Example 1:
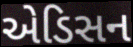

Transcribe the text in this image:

એડિસન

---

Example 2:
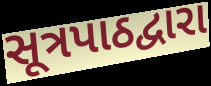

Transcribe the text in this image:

સૂત્રપાઠદ્વારા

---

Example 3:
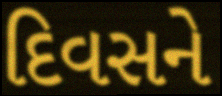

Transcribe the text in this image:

દિવસને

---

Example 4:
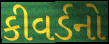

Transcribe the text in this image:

કીવર્ડનો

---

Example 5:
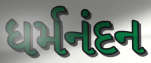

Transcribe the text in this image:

ધર્મનંદન